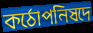
কঠোপনিষদে